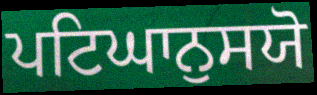
ਪਟਿਘਾਨੁਸਯੋ